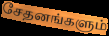
சேதனங்களும்